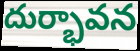
దుర్భావన